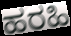
ಹರಹಿ